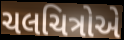
ચલચિત્રોએ